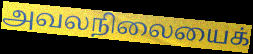
அவலநிலையைக்